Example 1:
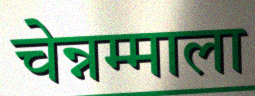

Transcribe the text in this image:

चेन्नम्माला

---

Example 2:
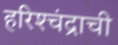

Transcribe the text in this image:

हरिश्‍चंद्राची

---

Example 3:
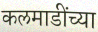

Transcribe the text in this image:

कलमाडींच्या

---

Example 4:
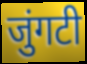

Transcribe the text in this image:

जुंगटी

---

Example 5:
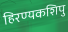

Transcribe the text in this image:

हिरण्यकशिपु